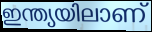
ഇന്ത്യയിലാണ്